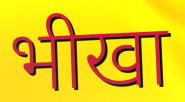
भीखा